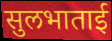
सुलभाताई